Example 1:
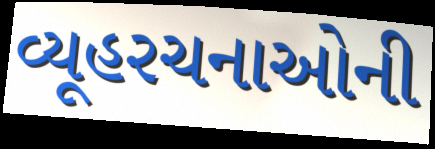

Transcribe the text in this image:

વ્યૂહરચનાઓની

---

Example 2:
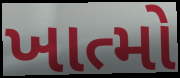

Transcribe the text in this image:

ખાત્મો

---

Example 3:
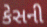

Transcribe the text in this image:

કેસની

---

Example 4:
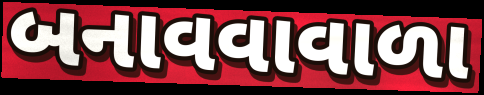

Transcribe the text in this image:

બનાવવાવાળા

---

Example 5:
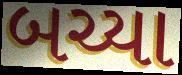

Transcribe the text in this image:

બચ્યા